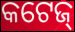
କଟେଜ୍